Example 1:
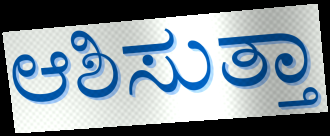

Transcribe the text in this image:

ಆಶಿಸುತ್ತಾ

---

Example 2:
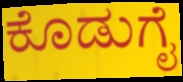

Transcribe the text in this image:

ಕೊಡುಗೈ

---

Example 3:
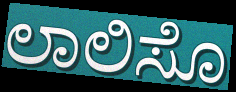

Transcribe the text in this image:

ಲಾಲಿಸೊ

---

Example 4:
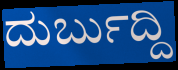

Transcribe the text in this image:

ದುರ್ಬುದ್ದಿ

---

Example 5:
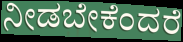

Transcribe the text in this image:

ನೀಡಬೇಕೆಂದರೆ